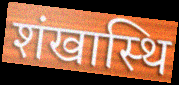
शंखास्थि